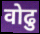
वोढु